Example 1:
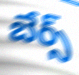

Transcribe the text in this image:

బేర్స్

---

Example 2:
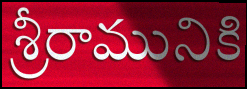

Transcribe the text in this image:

శ్రీరామునికి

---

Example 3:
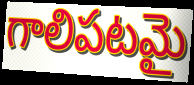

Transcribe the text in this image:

గాలిపటమై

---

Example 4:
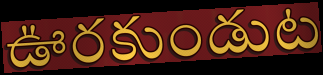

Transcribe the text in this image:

ఊరకుండుట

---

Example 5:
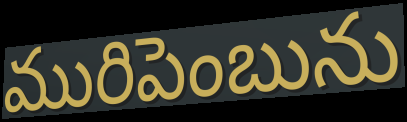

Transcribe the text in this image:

మురిపెంబును